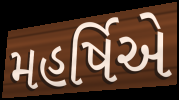
મહર્ષિએ